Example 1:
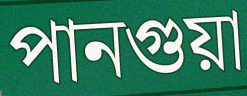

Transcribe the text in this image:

পানগুয়া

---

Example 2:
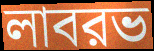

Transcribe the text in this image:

লাবরভ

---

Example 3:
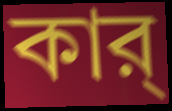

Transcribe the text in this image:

কার্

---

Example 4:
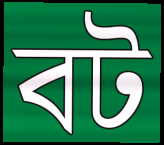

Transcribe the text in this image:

বট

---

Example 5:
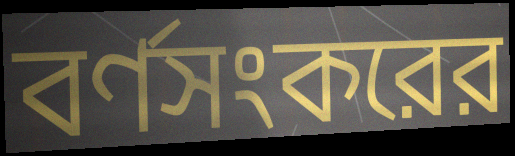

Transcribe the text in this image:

বর্ণসংকরের